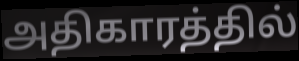
அதிகாரத்தில்